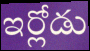
ఇర్లోడు